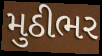
મુઠીભર